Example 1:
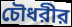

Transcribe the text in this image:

চৌধরীর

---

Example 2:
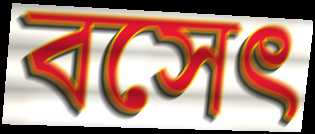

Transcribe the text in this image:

বসেৎ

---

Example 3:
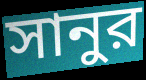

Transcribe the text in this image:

সানুর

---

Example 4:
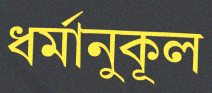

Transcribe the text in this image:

ধর্মানুকূল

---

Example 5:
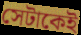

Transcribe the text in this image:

সেটাকেই